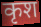
कृश